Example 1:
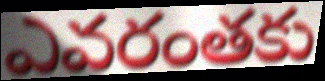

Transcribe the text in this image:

ఎవరంతకు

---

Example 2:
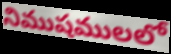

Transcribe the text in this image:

నిముషములలో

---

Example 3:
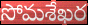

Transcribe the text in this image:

సోమశేఖర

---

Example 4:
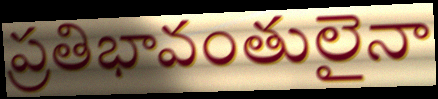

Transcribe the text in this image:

ప్రతిభావంతులైనా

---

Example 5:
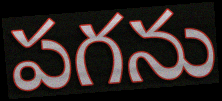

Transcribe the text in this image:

పగను